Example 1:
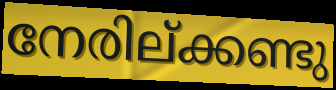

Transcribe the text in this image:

നേരില്ക്കണ്ടു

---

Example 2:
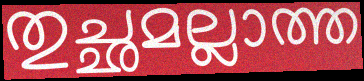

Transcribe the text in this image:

തുച്ഛമല്ലാത്ത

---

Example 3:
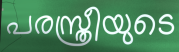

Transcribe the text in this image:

പരസ്ത്രീയുടെ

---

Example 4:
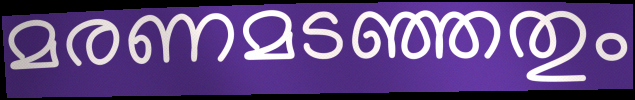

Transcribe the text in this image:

മരണമടഞ്ഞതും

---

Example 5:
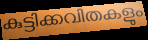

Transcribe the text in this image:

കുട്ടിക്കവിതകളും